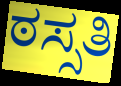
ಠಸ್ಸತಿ